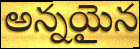
అన్నయైన